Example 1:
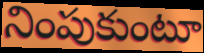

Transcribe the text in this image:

నింపుకుంటూ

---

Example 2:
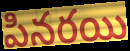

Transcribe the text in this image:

పినరయి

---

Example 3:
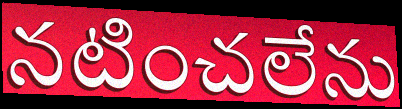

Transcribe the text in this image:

నటించలేను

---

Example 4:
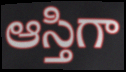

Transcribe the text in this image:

ఆస్తిగా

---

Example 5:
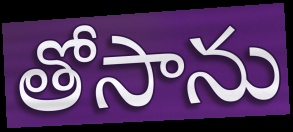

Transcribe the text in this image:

తోసాను